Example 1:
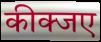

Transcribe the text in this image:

कीक्जए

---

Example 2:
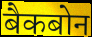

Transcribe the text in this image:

बैकबोन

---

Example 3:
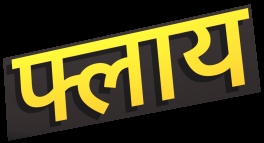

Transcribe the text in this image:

फ्लाय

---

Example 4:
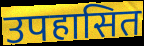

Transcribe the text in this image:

उपहासित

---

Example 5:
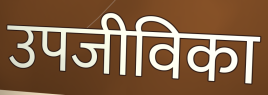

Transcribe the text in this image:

उपजीविका